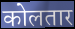
कोलतार